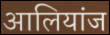
आलियांज